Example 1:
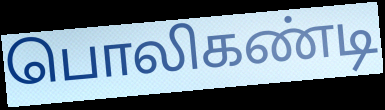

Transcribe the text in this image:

பொலிகண்டி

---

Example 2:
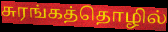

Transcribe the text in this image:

சுரங்கத்தொழில்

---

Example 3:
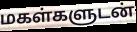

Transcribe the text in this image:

மகள்களுடன்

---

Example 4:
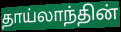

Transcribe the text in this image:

தாய்லாந்தின்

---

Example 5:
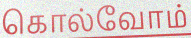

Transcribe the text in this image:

கொல்வோம்